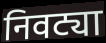
निवट्या